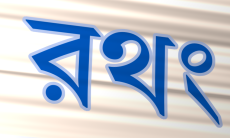
রথং